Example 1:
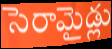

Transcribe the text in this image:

సెరామైడ్లు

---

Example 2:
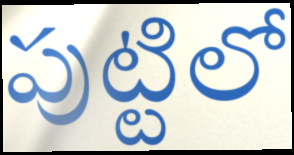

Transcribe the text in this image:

పుట్టిలో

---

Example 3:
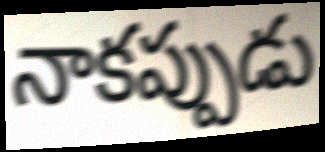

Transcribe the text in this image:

నాకప్పుడు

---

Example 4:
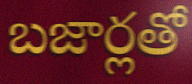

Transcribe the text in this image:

బజార్లతో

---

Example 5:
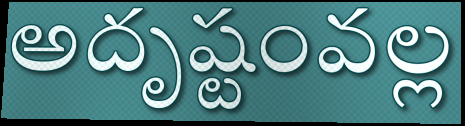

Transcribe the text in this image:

అదృష్టంవల్ల